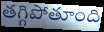
తగ్గిపోతూంది